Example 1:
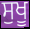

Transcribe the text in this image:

ਸੁਖੂ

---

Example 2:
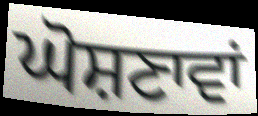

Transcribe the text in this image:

ਘੋਸ਼ਣਾਵਾਂ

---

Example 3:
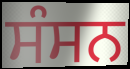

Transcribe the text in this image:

ਸੰਸਨ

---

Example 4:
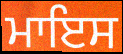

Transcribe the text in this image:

ਮਾਇਸ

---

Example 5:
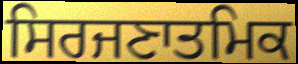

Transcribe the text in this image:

ਸਿਰਜਣਾਤਮਿਕ